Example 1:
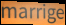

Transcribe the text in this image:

marrige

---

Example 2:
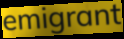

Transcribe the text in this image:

emigrant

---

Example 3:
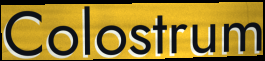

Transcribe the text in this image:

Colostrum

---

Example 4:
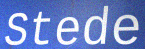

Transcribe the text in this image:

Stede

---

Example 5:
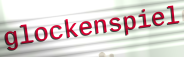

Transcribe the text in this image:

glockenspiel